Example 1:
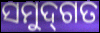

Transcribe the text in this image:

ସମୁଦ୍‌ଗତ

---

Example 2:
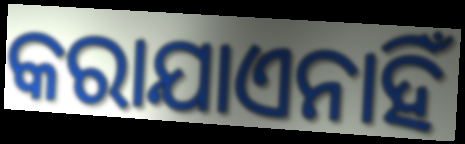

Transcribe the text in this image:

କରାଯାଏନାହିଁ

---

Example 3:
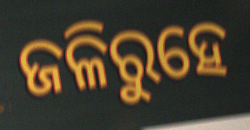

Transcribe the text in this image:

ଜଳିରୁହେ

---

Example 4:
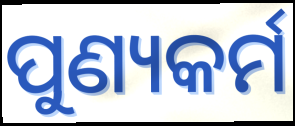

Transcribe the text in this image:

ପୁଣ୍ୟକର୍ମ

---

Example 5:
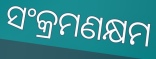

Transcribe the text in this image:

ସଂକ୍ରମଣକ୍ଷମ